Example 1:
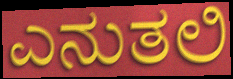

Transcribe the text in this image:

ಎನುತಲಿ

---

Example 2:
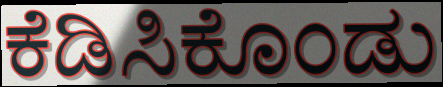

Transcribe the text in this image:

ಕೆಡಿಸಿಕೊಂಡು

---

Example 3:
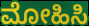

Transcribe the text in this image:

ಮೋಹಿಸಿ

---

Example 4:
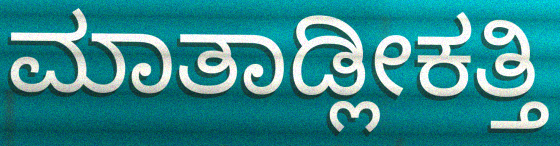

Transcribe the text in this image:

ಮಾತಾಡ್ಲೀಕತ್ತಿ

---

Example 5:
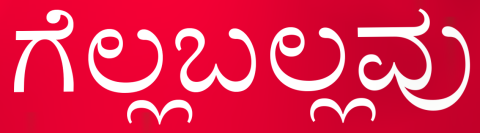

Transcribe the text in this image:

ಗೆಲ್ಲಬಲ್ಲವು